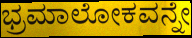
ಭ್ರಮಾಲೋಕವನ್ನೇ